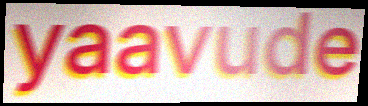
yaavude